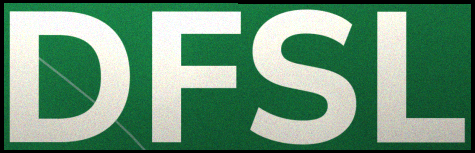
DFSL